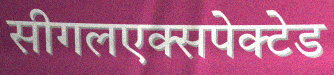
सीगलएक्सपेक्टेड